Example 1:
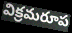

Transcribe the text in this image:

విక్రమరూప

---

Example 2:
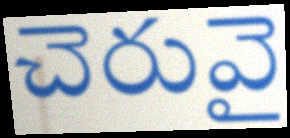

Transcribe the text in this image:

చెరువై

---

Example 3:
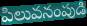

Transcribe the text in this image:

పిలువనంపుడి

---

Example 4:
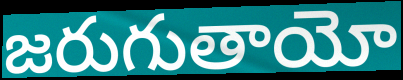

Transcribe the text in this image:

జరుగుతాయో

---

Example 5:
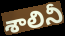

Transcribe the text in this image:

శాలినీ